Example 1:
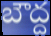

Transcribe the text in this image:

బౌద్ద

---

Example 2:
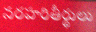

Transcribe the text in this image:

నరహరితీర్థులు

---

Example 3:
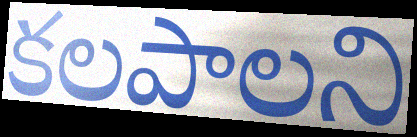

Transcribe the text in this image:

కలపాలని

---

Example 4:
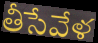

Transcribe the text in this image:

తీసేవేళ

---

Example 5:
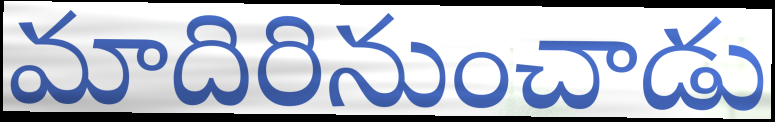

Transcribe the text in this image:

మాదిరినుంచాడు